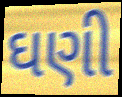
ઘણી